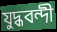
যুদ্ধবন্দী